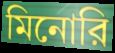
মিনোরি